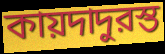
কায়দাদুরস্ত